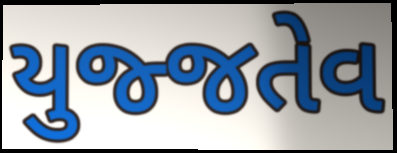
યુજ્જતેવ